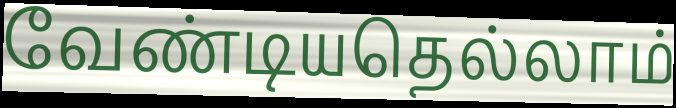
வேண்டியதெல்லாம்